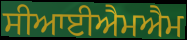
ਸੀਆਈਐਮਐਮ